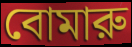
বোমারু